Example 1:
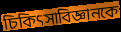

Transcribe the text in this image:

চিকিৎসাবিজ্ঞানকে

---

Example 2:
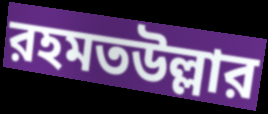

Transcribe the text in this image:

রহমতউল্লার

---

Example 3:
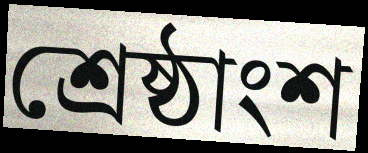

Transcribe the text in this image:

শ্রেষ্ঠাংশ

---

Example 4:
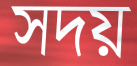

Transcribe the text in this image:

সদয়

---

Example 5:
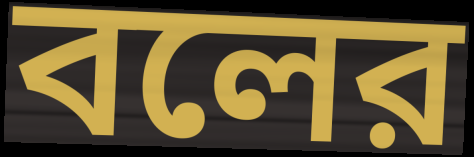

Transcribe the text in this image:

বলের